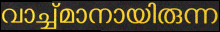
വാച്ച്മാനായിരുന്ന